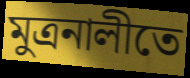
মুত্রনালীতে